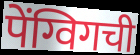
पेंग्विगची